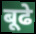
बूढे